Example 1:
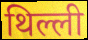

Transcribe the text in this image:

थिल्ली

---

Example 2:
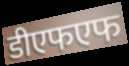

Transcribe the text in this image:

डीएफएफ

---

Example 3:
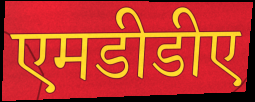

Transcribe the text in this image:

एमडीडीए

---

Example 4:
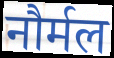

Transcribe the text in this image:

नौर्मल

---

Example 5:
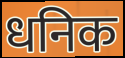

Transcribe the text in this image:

धनिक